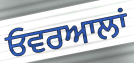
ਓਵਰਆਲਾਂ